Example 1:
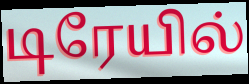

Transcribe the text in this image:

டிரேயில்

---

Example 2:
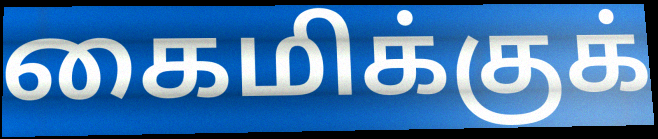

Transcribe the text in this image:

கைமிக்குக்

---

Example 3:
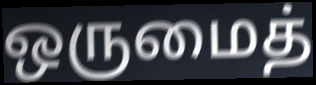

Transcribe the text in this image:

ஒருமைத்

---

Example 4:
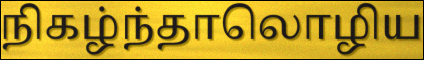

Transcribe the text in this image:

நிகழ்ந்தாலொழிய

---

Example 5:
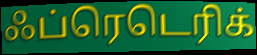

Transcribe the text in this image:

ஃப்ரெடெரிக்